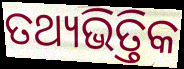
ତଥ୍ୟଭିତ୍ତିକ